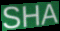
SHA